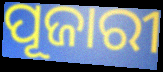
ପୂଜାରୀ